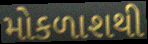
મોકળાશથી